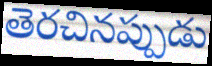
తెరచినప్పుడు